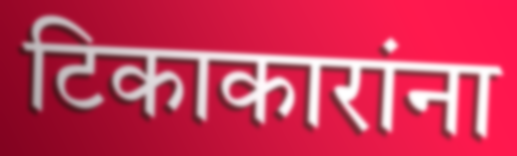
टिकाकारांना